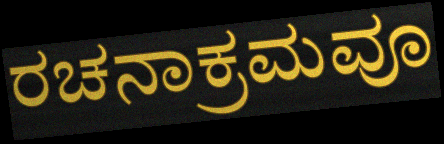
ರಚನಾಕ್ರಮವೂ